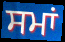
ਸਮਾਂ